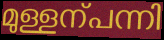
മുള്ളന്പന്നി